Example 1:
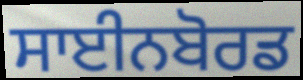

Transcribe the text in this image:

ਸਾਈਨਬੋਰਡ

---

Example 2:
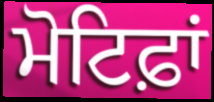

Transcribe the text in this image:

ਮੋਟਿਫ਼ਾਂ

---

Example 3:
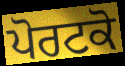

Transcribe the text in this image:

ਪੋਰਟਕੋ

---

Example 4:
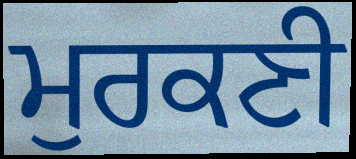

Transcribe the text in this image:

ਮੁਰਕਣੀ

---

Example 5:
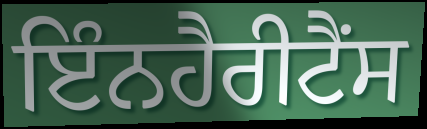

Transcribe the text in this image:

ਇੰਨਹੈਰੀਟੈੰਸ